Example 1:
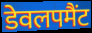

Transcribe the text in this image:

डेवलपमैंट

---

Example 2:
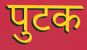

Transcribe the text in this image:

पुटक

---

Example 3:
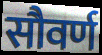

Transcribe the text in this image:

सौवर्ण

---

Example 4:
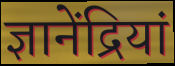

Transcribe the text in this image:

ज्ञानेंद्रियां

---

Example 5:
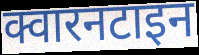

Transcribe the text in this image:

क्वारनटाइन